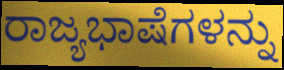
ರಾಜ್ಯಭಾಷೆಗಳನ್ನು